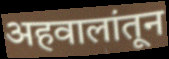
अहवालांतून